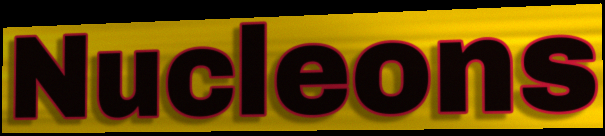
Nucleons